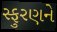
સ્ફુરણને